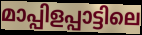
മാപ്പിളപ്പാട്ടിലെ